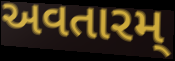
અવતારમ્